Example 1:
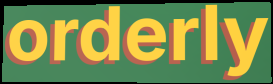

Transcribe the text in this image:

orderly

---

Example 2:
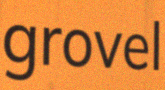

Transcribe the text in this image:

grovel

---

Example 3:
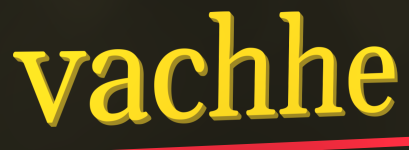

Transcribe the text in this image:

vachhe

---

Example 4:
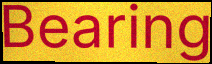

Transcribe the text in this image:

Bearing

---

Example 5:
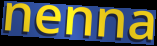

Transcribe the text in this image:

nenna